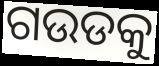
ଗଉଡକୁ